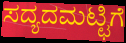
ಸದ್ಯದಮಟ್ಟಿಗೆ